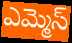
ఎమ్మెస్